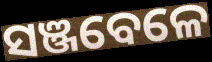
ସଞ୍ଜବେଳେ